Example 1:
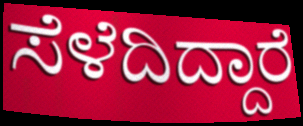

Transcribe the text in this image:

ಸೆಳೆದಿದ್ದಾರೆ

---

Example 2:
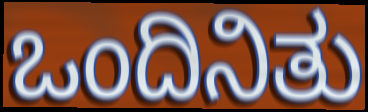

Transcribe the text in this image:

ಒಂದಿನಿತು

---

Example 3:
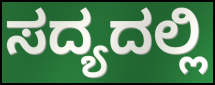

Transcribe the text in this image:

ಸದ್ಯದಲ್ಲಿ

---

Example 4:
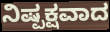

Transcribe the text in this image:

ನಿಷ್ಪಕ್ಷವಾದ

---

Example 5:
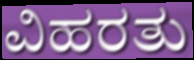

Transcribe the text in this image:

ವಿಹರತು